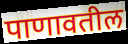
पाणावतील